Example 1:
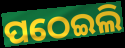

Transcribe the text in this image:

ପଠେଇଲି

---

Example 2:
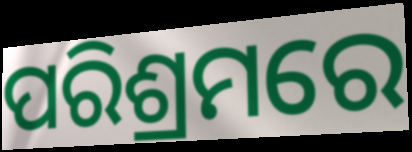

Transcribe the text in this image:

ପରିଶ୍ରମରେ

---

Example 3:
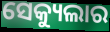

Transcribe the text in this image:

ସେକ୍ୟୁଲାର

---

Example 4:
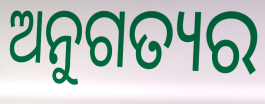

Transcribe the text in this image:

ଅନୁଗତ୍ୟର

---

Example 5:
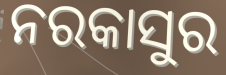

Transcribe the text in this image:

ନରକାସୁର